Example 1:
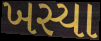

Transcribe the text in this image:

ખસ્યા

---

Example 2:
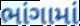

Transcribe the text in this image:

ભાંગામાં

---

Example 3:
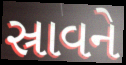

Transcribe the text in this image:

સ્રાવને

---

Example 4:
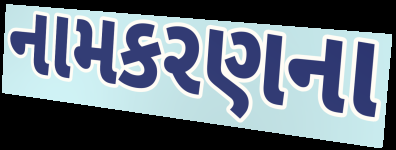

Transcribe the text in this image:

નામકરણના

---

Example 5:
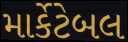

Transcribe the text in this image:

માર્કેટેબલ